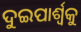
ଦୁଇପାର୍ଶ୍ବକୁ